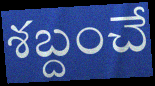
శబ్దంచే